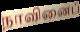
நாவினைப்